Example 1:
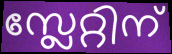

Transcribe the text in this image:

സ്ലേറ്റിന്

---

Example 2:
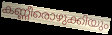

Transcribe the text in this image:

കണ്ണീരൊഴുക്കിയും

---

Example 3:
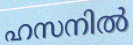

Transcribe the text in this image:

ഹസനിൽ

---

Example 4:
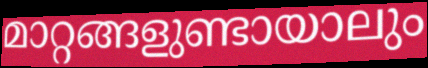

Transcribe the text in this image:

മാറ്റങ്ങളുണ്ടായാലും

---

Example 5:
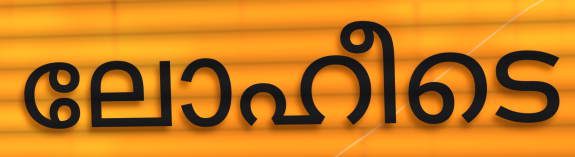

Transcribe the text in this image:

ലോഹീടെ